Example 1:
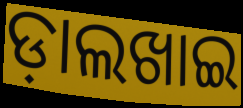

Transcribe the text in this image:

ଡ଼ାଲଖାଇ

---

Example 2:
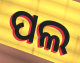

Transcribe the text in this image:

ପଲ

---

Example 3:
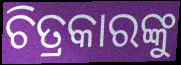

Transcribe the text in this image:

ଚିତ୍ରକାରଙ୍କୁ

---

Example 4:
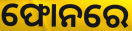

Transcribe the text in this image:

ଫୋନରେ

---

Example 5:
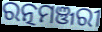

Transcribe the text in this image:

ରତ୍ନମଞ୍ଜରୀ